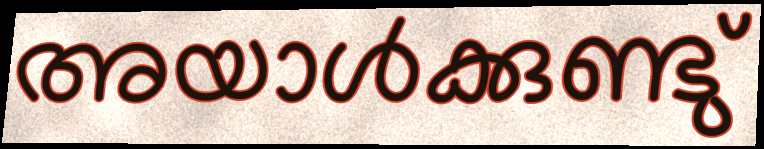
അയാൾക്കുണ്ടു്